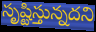
సృష్టిస్తున్నదని